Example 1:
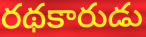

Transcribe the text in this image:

రథకారుడు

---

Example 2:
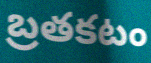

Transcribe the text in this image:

బ్రతకటం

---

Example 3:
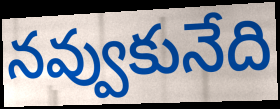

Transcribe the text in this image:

నవ్వుకునేది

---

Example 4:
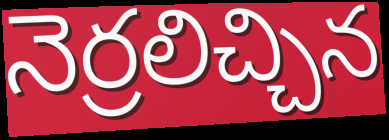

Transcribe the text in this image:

నెర్రలిచ్చిన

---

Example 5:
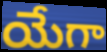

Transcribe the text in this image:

యేగా